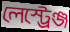
লেস্ট্রেঞ্জ